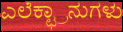
ಎಲೆಕ್ಟ್ರಾನುಗಳು